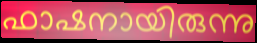
ഫാഷനായിരുന്നു